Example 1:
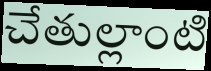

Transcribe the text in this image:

చేతుల్లాంటి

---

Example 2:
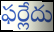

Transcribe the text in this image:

ఫర్లేదు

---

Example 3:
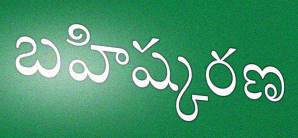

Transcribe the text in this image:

బహిష్కరణ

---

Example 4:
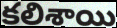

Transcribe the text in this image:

కలిశాయి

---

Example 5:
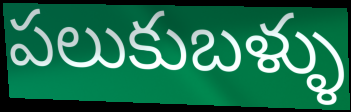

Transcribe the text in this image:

పలుకుబళ్ళు